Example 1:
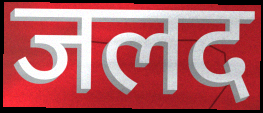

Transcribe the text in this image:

जलद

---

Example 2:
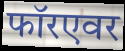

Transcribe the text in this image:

फॉरएवर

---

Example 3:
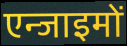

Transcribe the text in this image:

एन्जाइमों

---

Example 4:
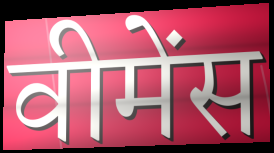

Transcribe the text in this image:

वीमेंस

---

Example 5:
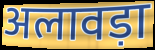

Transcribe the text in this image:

अलावड़ा